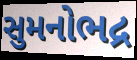
સુમનોભદ્ર